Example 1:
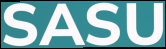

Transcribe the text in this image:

SASU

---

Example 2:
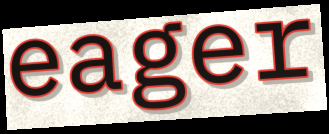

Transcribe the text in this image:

eager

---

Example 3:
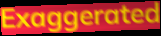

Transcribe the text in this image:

Exaggerated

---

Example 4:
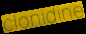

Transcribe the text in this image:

clonidine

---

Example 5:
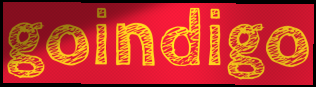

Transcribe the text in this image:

goindigo